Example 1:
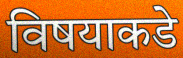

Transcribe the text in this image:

विषयाकडे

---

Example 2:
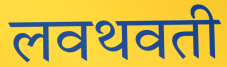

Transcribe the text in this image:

लवथवती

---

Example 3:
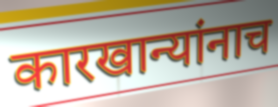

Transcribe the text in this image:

कारखान्यांनाच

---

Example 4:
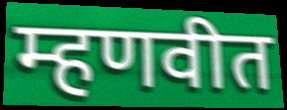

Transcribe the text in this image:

म्हणवीत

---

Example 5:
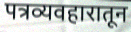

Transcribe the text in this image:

पत्रव्यवहारातून